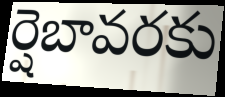
ర్షెబావరకు